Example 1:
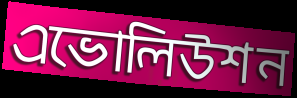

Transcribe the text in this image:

এভোলিউশন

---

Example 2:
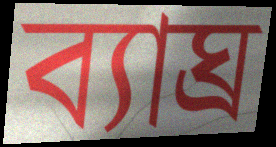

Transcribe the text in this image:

ব্যাঘ্র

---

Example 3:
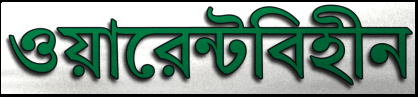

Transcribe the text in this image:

ওয়ারেন্টবিহীন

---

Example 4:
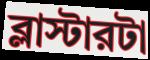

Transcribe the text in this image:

ব্লাস্টারটা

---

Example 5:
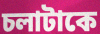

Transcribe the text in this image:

চলাটাকে